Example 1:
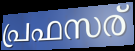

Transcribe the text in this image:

പ്രഫസര്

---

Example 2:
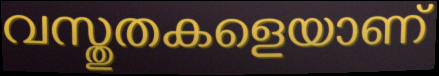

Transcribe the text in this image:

വസ്തുതകളെയാണ്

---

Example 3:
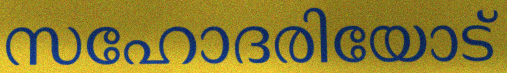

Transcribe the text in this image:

സഹോദരിയോട്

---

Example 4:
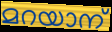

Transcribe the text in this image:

മറയാന്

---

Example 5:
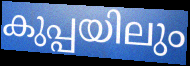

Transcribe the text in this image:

കുപ്പയിലും